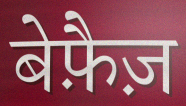
बेफ़ैज़